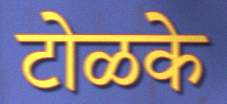
टोळके